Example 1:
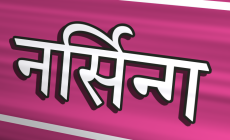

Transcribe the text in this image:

नर्सिन्ग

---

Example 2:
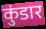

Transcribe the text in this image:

कुंडार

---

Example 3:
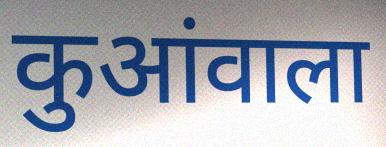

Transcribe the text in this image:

कुआंवाला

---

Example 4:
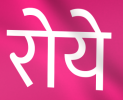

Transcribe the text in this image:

रोये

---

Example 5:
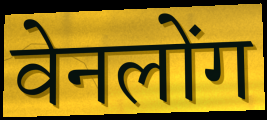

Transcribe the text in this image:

वेनलोंग